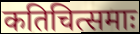
कतिचित्समाः